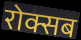
रोक्सब